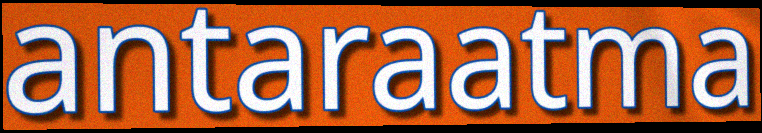
antaraatma